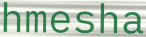
hmesha